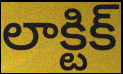
లాక్టిక్